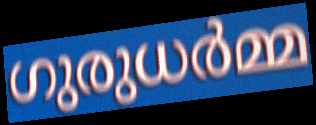
ഗുരുധർമ്മ